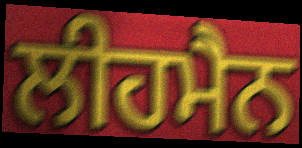
ਲੀਹਮੈਨ